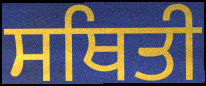
ਸਥਿਤੀ